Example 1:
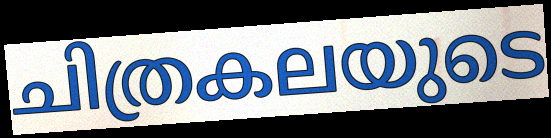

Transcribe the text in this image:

ചിത്രകലയുടെ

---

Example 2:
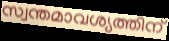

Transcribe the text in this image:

സ്വന്തമാവശ്യത്തിന്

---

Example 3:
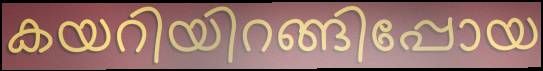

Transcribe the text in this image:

കയറിയിറങ്ങിപ്പോയ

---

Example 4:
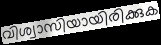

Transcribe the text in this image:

വിശ്വാസിയായിരിക്കുക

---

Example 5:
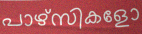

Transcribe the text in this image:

പാഴ്സികളോ